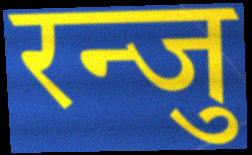
रन्जु